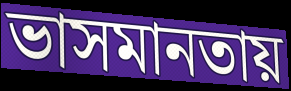
ভাসমানতায়